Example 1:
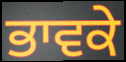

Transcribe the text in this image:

ਭਾਵਕੇ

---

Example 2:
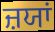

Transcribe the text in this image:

ਜ਼ਯਾਂ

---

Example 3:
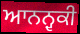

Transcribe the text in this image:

ਆਨਨ੍ਦਕੀ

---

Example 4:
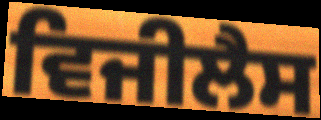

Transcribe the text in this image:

ਵਿਜੀਲੈਸ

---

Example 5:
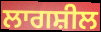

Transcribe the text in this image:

ਲਾਗਸ਼ੀਲ